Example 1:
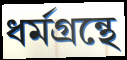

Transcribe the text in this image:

ধর্মগ্রন্থে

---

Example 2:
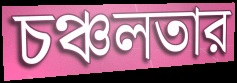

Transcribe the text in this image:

চঞ্চলতার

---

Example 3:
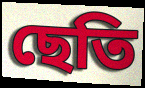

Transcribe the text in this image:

ছেতি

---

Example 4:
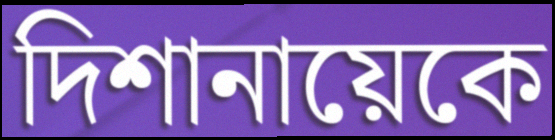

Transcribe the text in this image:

দিশানায়েকে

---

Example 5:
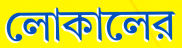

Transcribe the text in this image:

লোকালের